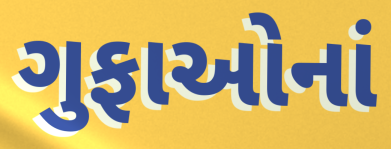
ગુફાઓનાં